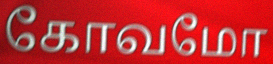
கோவமோ